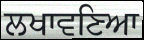
ਲਖਾਵਣਿਆ